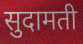
सुदामती